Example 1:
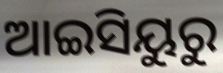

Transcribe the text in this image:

ଆଇସିୟୁରୁ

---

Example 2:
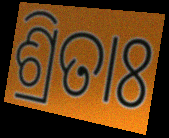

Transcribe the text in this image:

ଶ୍ରିତାଃ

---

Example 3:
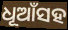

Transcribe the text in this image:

ଧୂଆଁସହ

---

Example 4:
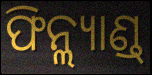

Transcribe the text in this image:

ଫିନ୍ଲ୍ୟାଣ୍ଡ୍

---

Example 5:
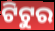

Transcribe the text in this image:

ଟିଟୁର